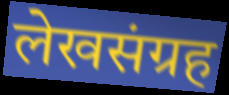
लेखसंग्रह